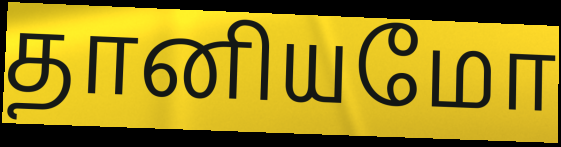
தானியமோ